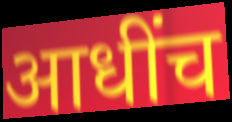
आधींच